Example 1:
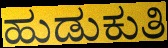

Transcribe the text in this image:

ಹುಡುಕುತಿ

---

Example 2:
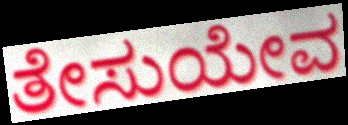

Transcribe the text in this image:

ತೇಸುಯೇವ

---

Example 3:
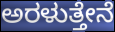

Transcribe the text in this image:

ಅರಳುತ್ತೇನೆ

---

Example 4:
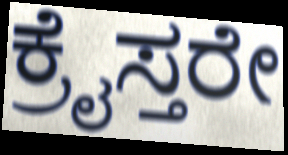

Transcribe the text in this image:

ಕ್ರೈಸ್ತರೇ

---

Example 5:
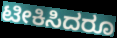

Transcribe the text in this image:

ಟೀಕಿಸಿದರೂ